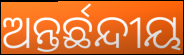
ଅନ୍ତର୍ଛନ୍ଦୀୟ